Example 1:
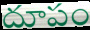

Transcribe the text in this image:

దూపం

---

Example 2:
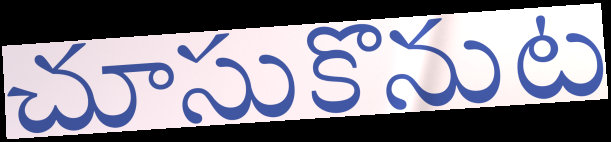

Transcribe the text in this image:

చూసుకొనుట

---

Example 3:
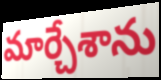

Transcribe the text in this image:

మార్చేశాను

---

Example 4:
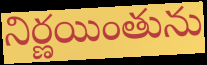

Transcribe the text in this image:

నిర్ణయింతును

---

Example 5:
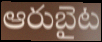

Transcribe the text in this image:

ఆరుబైట